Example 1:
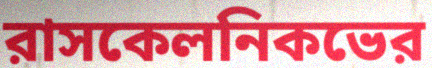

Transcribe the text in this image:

রাসকেলনিকভের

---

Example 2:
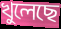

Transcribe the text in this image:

খুলেছে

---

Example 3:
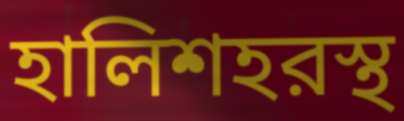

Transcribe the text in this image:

হালিশহরস্থ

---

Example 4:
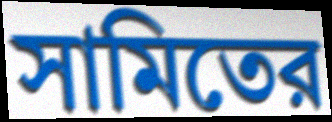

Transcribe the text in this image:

সামিতের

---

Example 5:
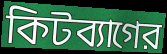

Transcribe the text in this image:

কিটব্যাগের